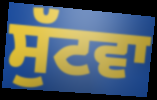
ਸੁੱਟਵਾ